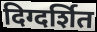
दिग्दर्शित